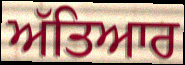
ਅੱਤਿਆਰ